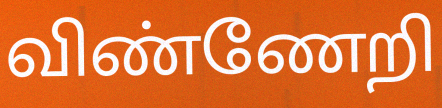
விண்ணேறி